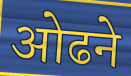
ओढने